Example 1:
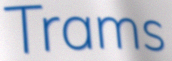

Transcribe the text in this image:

Trams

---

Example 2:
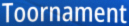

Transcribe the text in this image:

Toornament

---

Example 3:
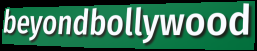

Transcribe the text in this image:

beyondbollywood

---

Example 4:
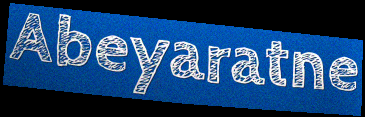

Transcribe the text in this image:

Abeyaratne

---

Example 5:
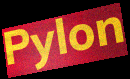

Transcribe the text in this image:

Pylon